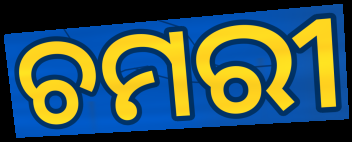
ଚମରୀ